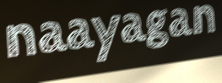
naayagan